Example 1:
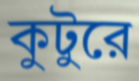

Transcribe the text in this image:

কুটুরে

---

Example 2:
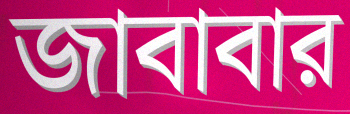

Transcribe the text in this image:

জাবাবার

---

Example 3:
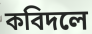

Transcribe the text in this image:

কবিদলে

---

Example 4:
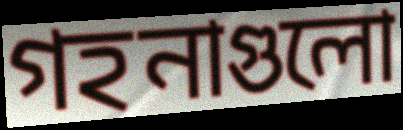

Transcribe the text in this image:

গহনাগুলো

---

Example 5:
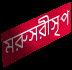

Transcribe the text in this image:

মরুসরীসৃপ